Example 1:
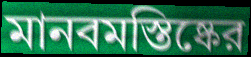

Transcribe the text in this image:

মানবমস্তিষ্কের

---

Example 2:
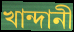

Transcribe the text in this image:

খান্দানী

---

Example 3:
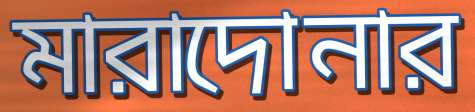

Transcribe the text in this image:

মারাদোনার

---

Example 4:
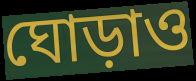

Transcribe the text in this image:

ঘোড়াও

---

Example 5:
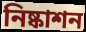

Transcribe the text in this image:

নিষ্কাশন